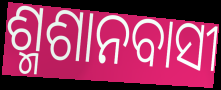
ଶ୍ମଶାନବାସୀ